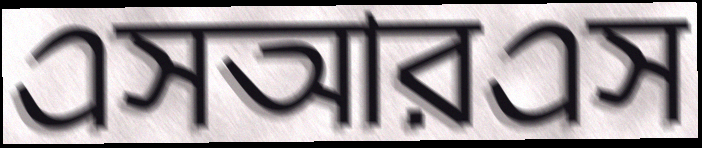
এসআরএস